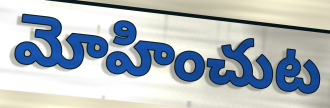
మోహించుట